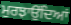
ਮੁਰਝਾਉਂਦਿਆਂ